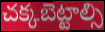
చక్కబెట్టాల్సి